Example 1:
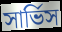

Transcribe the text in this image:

সার্ভিস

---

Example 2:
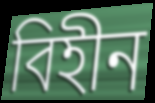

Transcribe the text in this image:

বিহীন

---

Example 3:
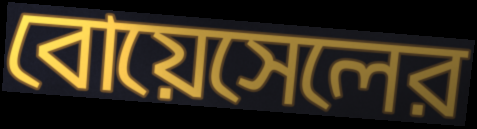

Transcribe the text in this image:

বোয়েসেলের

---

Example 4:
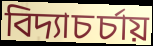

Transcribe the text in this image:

বিদ্যাচর্চায়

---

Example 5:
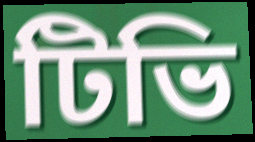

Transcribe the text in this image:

টিভি